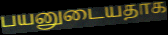
பயனுடையதாக